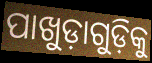
ପାଖୁଡ଼ାଗୁଡ଼ିକୁ